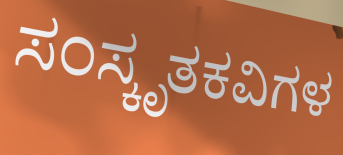
ಸಂಸ್ಕೃತಕವಿಗಳ